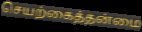
செயற்கைத்தன்மை